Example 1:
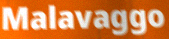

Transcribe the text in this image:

Malavaggo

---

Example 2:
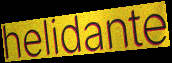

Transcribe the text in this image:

helidante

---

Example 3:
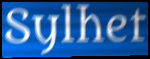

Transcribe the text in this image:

Sylhet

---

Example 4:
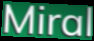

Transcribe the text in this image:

Miral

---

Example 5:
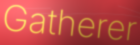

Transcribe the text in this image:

Gatherer